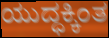
ಯುದ್ಧಕ್ಕಿಂತ